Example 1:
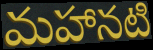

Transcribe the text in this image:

మహానటి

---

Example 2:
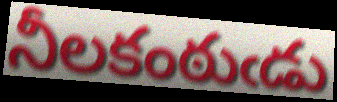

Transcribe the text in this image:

నీలకంఠుఁడు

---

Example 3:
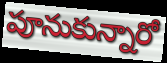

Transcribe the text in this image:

పూనుకున్నారో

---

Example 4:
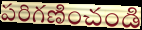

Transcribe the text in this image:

పరిగణించండి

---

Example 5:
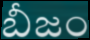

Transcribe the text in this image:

బీజం